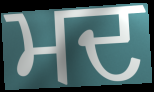
ਮਦ